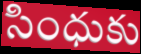
సింధుకు